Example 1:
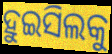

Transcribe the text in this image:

ହୁଇସିଲକୁ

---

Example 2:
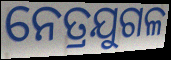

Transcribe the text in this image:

ନେତ୍ରଯୁଗଳ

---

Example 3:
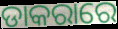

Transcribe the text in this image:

ଡାକରାରେ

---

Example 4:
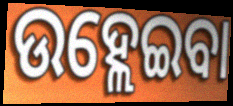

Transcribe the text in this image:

ଉହ୍ଲେଇବା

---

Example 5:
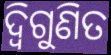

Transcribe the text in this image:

ଦ୍ୱିଗୁଣିତ